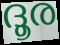
ദൂര